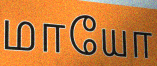
மாயோ